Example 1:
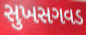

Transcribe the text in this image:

સુખસગવડ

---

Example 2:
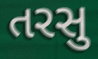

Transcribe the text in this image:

તરસુ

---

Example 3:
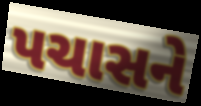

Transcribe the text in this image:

પચાસને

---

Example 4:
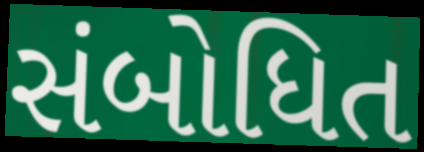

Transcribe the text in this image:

સંબોધિત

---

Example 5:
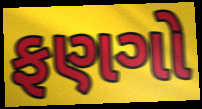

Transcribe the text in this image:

ફણગો